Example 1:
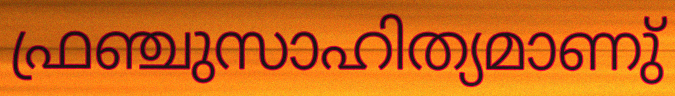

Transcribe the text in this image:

ഫ്രഞ്ചുസാഹിത്യമാണു്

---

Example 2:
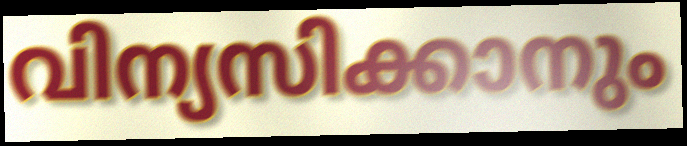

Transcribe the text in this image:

വിന്യസിക്കാനും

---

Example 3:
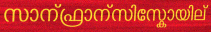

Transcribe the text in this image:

സാന്ഫ്രാന്സിസ്കോയില്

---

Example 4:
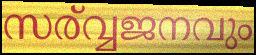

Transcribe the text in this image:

സര്വ്വജനവും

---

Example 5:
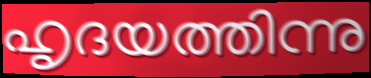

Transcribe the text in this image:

ഹൃദയത്തിന്നു